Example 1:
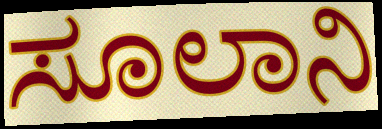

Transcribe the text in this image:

ಸೂಲಾನಿ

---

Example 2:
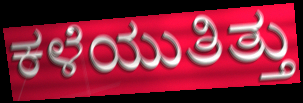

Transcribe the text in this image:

ಕಳೆಯುತಿತ್ತು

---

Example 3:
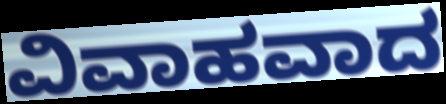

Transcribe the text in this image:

ವಿವಾಹವಾದ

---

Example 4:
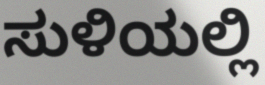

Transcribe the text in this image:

ಸುಳಿಯಲ್ಲಿ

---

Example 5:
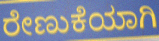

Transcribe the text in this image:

ರೇಣುಕೆಯಾಗಿ